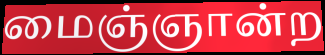
மைஞ்ஞான்ற